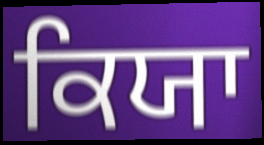
ਕਿਯਾ